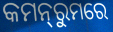
କମନ୍‌ରୁମରେ